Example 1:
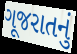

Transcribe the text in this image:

ગૂજરાતનું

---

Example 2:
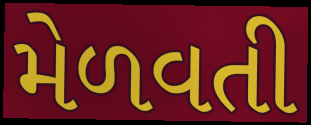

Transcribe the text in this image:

મેળવતી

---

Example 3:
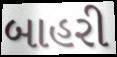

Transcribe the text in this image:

બાહરી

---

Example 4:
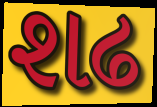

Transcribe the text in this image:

શઢ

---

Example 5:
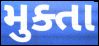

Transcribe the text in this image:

મુક્તા